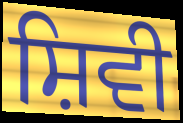
ਸ਼ਿਵੀ